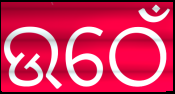
ଉଠେଁ